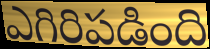
ఎగిరిపడింది